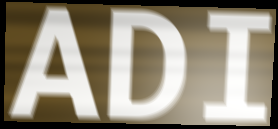
ADI